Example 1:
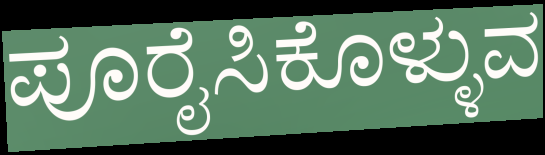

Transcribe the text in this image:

ಪೂರೈಸಿಕೊಳ್ಳುವ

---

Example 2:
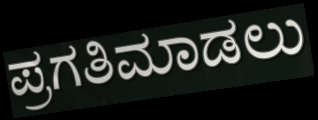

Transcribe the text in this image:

ಪ್ರಗತಿಮಾಡಲು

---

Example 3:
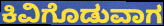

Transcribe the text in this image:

ಕಿವಿಗೊಡುವಾಗ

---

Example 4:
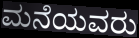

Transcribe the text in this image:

ಮನೆಯವರು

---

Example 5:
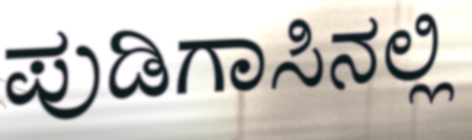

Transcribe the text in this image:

ಪುಡಿಗಾಸಿನಲ್ಲಿ